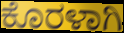
ಕೊರಳಾಗಿ